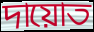
দায়োত